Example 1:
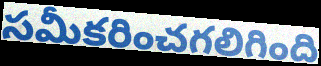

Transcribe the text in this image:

సమీకరించగలిగింది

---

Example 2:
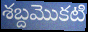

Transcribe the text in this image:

శబ్దమొకటి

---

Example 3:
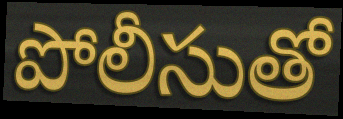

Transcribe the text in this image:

పోలీసుతో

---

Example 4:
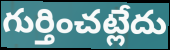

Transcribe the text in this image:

గుర్తించట్లేదు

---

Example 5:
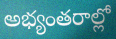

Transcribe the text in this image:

అభ్యంతరాల్లో